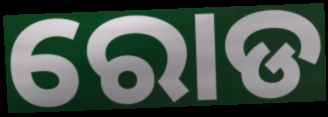
ରୋଡ